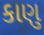
કાણુ